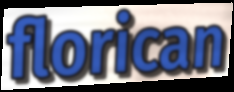
florican